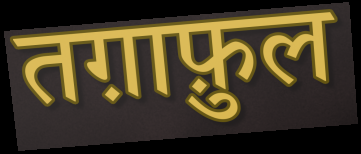
तग़ाफ़ुल